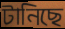
টানিছে